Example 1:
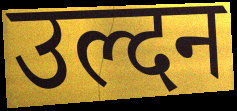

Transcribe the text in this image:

उल्दन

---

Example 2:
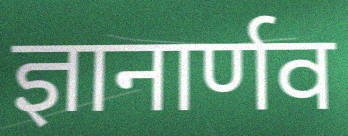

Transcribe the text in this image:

ज्ञानार्णव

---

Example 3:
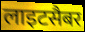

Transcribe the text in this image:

लाइटसैबर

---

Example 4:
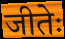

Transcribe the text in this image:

जीतेः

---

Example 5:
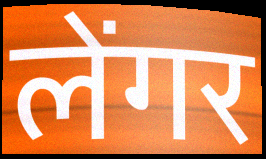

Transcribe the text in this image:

लेंगर